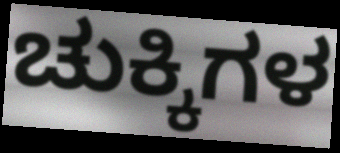
ಚುಕ್ಕಿಗಳ